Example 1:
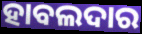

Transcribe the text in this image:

ହାବଲଦାର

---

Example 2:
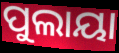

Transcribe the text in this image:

ପୁଲାୟା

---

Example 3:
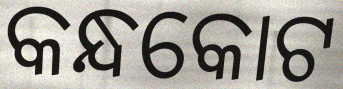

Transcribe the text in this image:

କନ୍ଧକୋଟ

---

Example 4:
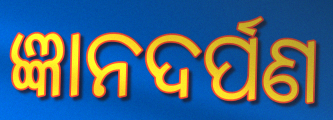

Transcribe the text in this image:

ଜ୍ଞାନଦର୍ପଣ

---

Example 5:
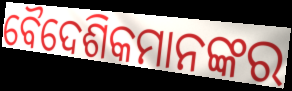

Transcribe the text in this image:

ବୈଦେଶିକମାନଙ୍କର